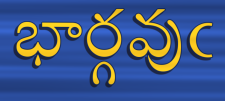
భార్గవుఁ